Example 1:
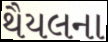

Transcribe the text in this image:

થૈયલના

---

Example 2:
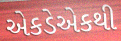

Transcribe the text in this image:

એકડેએકથી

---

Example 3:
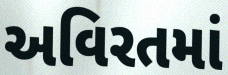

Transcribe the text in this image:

અવિરતમાં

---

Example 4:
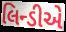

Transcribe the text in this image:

લિન્ડીએ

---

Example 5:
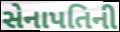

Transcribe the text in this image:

સેનાપતિની